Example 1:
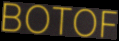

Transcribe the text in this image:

BOTOF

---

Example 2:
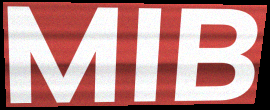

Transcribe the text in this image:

MIB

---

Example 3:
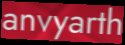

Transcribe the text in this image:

anvyarth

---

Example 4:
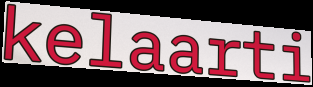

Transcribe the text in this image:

kelaarti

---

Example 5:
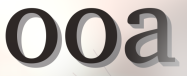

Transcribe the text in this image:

ooa